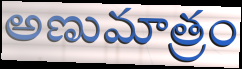
అణుమాత్రం